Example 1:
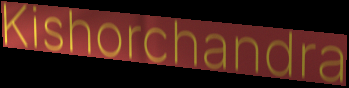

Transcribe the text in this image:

Kishorchandra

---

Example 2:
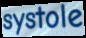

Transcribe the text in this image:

systole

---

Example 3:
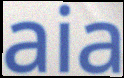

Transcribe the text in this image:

aia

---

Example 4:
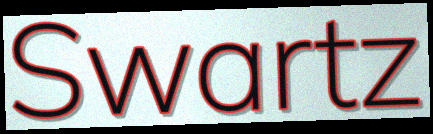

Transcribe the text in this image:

Swartz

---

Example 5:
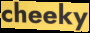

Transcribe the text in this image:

cheeky